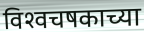
विश्वचषकाच्या